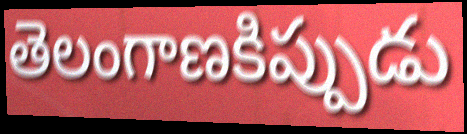
తెలంగాణకిప్పుడు